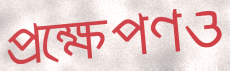
প্রক্ষেপণও